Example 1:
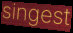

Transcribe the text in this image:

singest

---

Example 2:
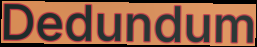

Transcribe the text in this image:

Dedundum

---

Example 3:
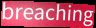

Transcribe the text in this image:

breaching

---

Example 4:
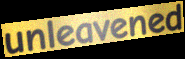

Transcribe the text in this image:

unleavened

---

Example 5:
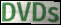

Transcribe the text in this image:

DVDs